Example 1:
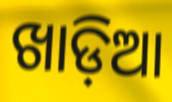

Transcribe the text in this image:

ଖାଡ଼ିଆ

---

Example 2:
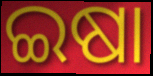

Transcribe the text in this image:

ଇଷା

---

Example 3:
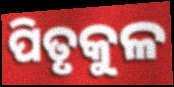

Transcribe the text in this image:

ପିତୃକୁଳ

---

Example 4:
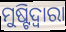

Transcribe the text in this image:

ମୁଷ୍ଟିଦ୍ୱାରା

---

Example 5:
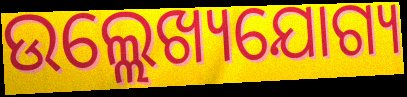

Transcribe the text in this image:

ଉଲ୍ଲେଖ୍ୟଯୋଗ୍ୟ